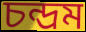
চন্দ্রম